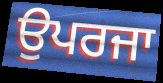
ਉਪਰਜਾ